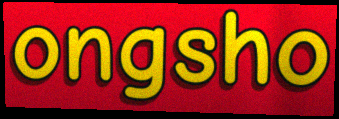
ongsho